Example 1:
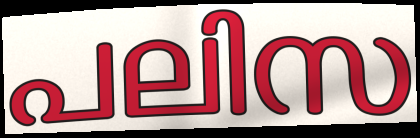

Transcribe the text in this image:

പലിസ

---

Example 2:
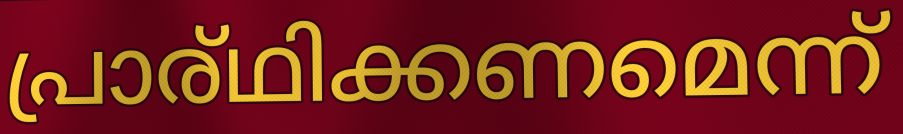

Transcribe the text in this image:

പ്രാര്ഥിക്കണമെന്ന്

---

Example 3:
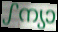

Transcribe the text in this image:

ഽന്യാ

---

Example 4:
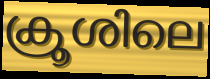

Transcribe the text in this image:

ക്രൂശിലെ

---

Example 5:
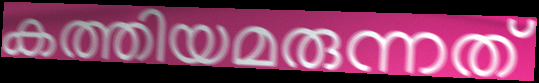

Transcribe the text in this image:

കത്തിയമരുന്നത്